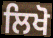
ਲਿਖੋ